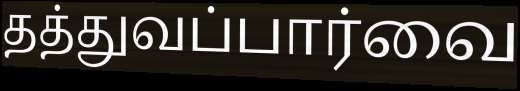
தத்துவப்பார்வை